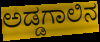
ಅಡ್ಡಗಾಲಿನ